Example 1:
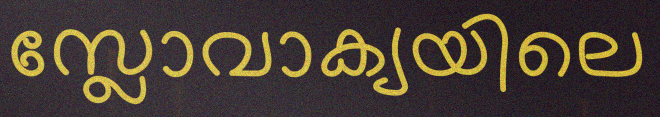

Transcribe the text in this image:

സ്ലോവാക്യയിലെ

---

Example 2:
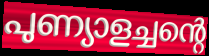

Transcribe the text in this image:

പുണ്യാളച്ചന്റെ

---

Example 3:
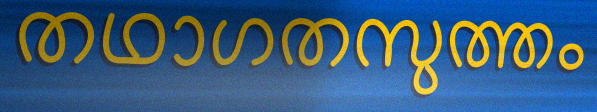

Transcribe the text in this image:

തഥാഗതസുത്തം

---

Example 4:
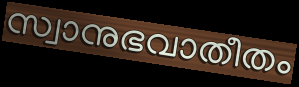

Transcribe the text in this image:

സ്വാനുഭവാതീതം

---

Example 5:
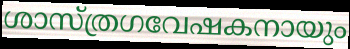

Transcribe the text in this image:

ശാസ്ത്രഗവേഷകനായും